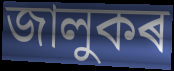
জালুকৰ